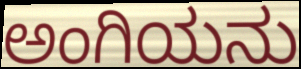
ಅಂಗಿಯನು